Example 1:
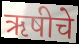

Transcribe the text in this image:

ऋषीचे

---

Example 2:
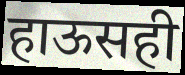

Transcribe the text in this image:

हाऊसही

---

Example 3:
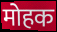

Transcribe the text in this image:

मोहक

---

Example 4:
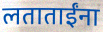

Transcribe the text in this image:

लताताईंना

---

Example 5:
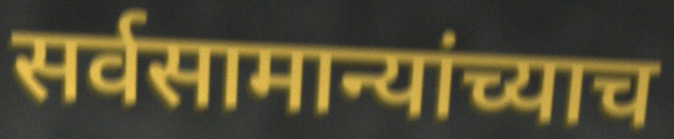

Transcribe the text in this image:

सर्वसामान्यांच्याच